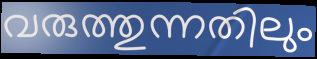
വരുത്തുന്നതിലും